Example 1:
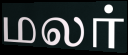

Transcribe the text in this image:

மலர்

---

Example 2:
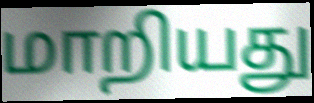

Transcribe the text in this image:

மாறியது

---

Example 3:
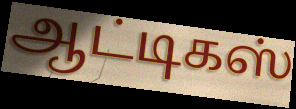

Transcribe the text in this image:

ஆட்டிகஸ்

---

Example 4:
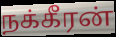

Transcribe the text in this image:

நக்கீரன்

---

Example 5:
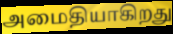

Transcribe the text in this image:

அமைதியாகிறது